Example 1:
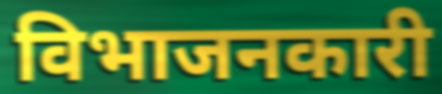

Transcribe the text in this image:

विभाजनकारी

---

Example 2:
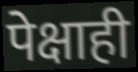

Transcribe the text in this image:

पेक्षाही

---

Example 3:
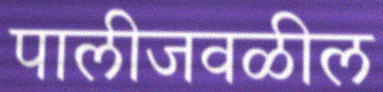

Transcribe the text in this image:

पालीजवळील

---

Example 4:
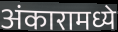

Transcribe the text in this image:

अंकारामध्ये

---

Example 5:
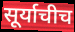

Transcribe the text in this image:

सूर्याचीच